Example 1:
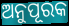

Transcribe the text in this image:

ଅନୁପୂରକ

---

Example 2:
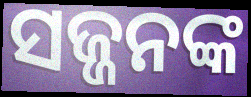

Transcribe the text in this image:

ସଜ୍ଜନଙ୍କ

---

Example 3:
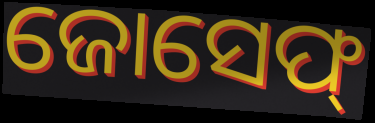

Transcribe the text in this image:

ଜୋସେଫ୍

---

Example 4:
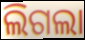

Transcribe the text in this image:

ଲିଗଲା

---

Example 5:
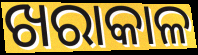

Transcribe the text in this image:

ଖରାକାଳ